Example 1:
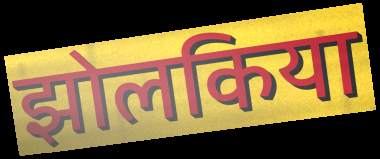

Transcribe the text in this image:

झोलकिया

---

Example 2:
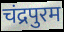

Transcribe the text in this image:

चंद्रपुरम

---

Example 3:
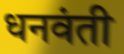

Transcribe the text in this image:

धनवंती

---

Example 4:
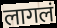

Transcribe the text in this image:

लागलं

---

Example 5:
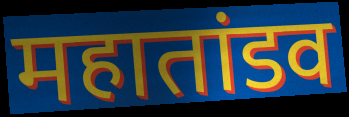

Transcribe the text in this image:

महातांडव